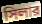
সিলার